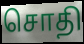
சொதி